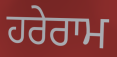
ਹਰੇਰਾਮ